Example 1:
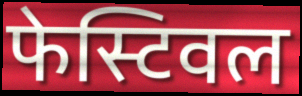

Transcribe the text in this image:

फेस्टिवल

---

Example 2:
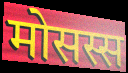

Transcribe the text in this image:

मोसस्स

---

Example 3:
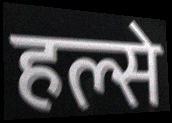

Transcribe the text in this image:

हल्से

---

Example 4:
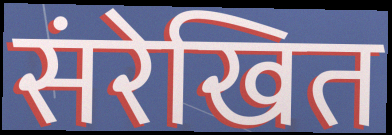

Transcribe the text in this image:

संरेखित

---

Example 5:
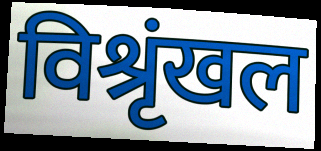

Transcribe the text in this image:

विश्रृंखल